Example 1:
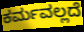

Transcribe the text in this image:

ಕರ್ಮವಲ್ಲದೆ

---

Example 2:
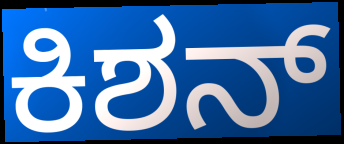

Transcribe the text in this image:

ಕಿಶನ್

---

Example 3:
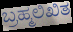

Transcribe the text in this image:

ಬ್ರಹ್ಮಲಿಖಿತ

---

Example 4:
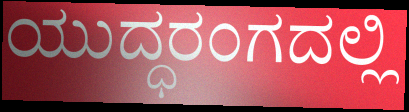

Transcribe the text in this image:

ಯುದ್ಧರಂಗದಲ್ಲಿ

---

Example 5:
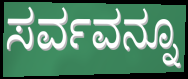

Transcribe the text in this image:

ಸರ್ವವನ್ನೂ